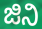
ಜಿನಿ